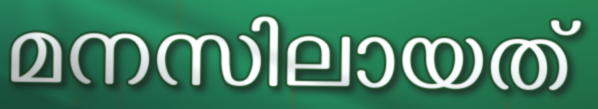
മനസിലായത്